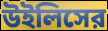
উইলিসের